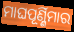
ମାଘପୂର୍ଣ୍ଣିମାର